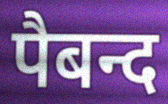
पैबन्द